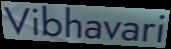
Vibhavari